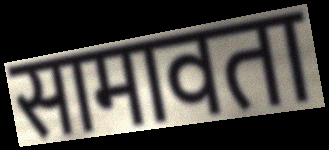
सामावता